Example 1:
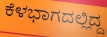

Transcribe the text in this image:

ಕೆಳಭಾಗದಲ್ಲಿದ್ದ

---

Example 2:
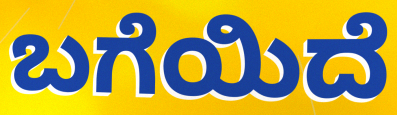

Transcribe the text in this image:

ಬಗೆಯಿದೆ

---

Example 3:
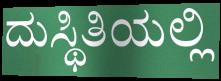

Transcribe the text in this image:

ದುಸ್ಥಿತಿಯಲ್ಲಿ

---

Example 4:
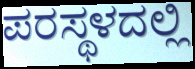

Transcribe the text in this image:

ಪರಸ್ಥಳದಲ್ಲಿ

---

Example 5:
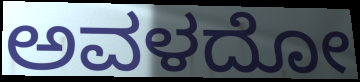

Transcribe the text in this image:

ಅವಳದೋ